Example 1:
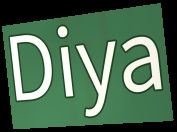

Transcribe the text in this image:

Diya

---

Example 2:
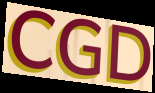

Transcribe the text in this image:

CGD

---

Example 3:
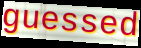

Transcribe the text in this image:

guessed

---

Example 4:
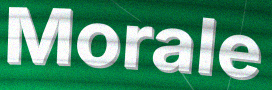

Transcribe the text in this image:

Morale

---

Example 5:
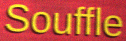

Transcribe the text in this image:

Souffle